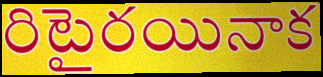
రిటైరయినాక